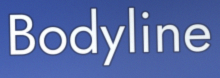
Bodyline